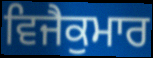
ਵਿਜੈਕੁਮਾਰ